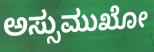
ಅಸ್ಸುಮುಖೋ